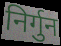
निर्गुन